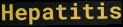
Hepatitis